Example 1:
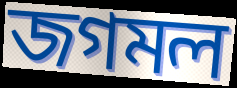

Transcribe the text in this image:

জগমল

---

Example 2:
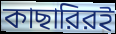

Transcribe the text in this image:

কাছারিরই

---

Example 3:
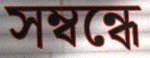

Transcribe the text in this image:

সম্বন্ধে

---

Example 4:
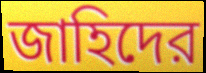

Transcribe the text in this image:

জাহিদের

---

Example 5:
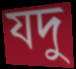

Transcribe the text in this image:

যদু